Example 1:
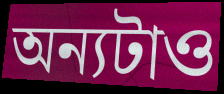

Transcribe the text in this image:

অন্যটাও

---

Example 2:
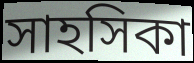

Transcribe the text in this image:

সাহসিকা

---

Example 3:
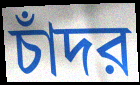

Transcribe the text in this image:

চাঁদর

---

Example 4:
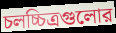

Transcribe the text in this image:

চলচ্চিত্রগুলোর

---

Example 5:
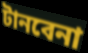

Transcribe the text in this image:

টানবেনা